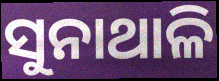
ସୁନାଥାଳି